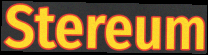
Stereum